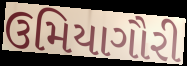
ઉમિયાગૌરી